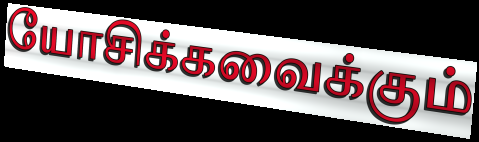
யோசிக்கவைக்கும்